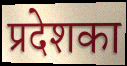
प्रदेशका